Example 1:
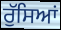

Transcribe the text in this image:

ਰੁੱਸਿਆਂ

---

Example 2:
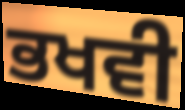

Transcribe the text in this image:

ਭਖਵੀ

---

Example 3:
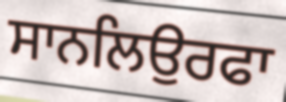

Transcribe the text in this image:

ਸਾਨਲਿਉਰਫਾ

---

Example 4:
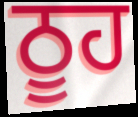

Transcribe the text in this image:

ਠੂਹ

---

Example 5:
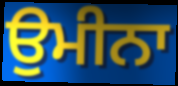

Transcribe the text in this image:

ਉਮੀਨਾ